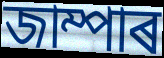
জাম্পাৰ